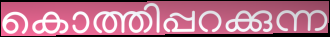
കൊത്തിപ്പറക്കുന്ന